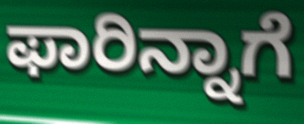
ಫಾರಿನ್ನಾಗೆ